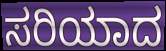
ಸರಿಯಾದ